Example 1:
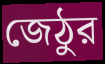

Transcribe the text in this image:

জেঠুর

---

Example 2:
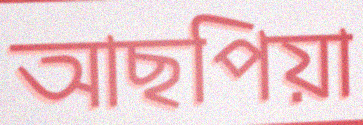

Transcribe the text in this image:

আছপিয়া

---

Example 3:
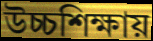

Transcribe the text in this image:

উচ্চশিক্ষায়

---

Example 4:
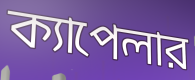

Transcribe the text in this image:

ক্যাপেলার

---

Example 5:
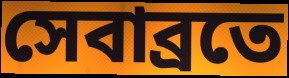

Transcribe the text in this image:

সেবাব্রতে